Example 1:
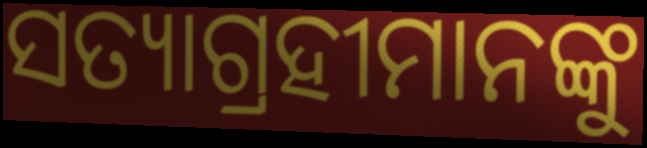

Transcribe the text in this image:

ସତ୍ୟାଗ୍ରହୀମାନଙ୍କୁ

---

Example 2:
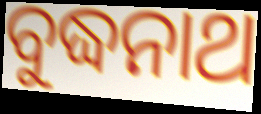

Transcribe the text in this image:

ବୁଦ୍ଧନାଥ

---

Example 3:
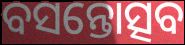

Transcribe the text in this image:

ବସନ୍ତୋତ୍ସବ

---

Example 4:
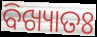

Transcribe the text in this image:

ବିଖ୍ୟାତଃ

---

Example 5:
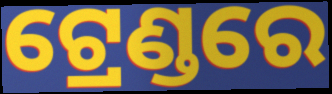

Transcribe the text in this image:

ଟ୍ରେଣ୍ଡରେ